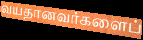
வயதானவர்களைப்